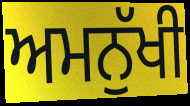
ਅਮਨੁੱਖੀ